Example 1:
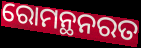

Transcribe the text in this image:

ରୋମନ୍ଥନରତ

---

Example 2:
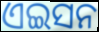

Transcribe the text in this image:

ଏଇସନ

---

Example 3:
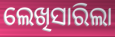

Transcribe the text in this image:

ଲେଖିସାରିଲା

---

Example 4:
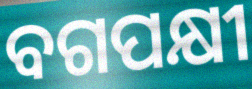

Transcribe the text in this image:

ବଗପକ୍ଷୀ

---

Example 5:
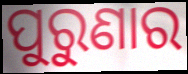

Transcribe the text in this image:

ପୁରୁଣାର